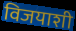
विजयाशी